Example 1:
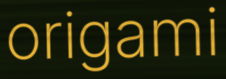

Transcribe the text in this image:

origami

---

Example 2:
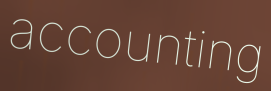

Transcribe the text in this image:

accounting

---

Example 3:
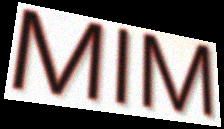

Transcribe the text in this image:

MIM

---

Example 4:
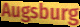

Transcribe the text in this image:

Augsburg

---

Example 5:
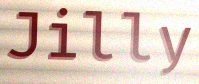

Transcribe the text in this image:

Jilly